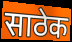
साठेक